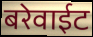
बरेवाईट